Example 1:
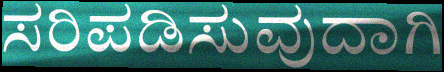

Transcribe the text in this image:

ಸರಿಪಡಿಸುವುದಾಗಿ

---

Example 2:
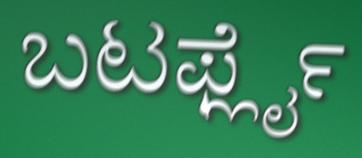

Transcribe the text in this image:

ಬಟರ್ಫ್ಲೈ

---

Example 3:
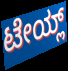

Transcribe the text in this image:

ಟೇಯ್ಲ್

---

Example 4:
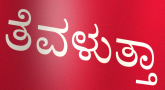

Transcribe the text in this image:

ತೆವಳುತ್ತಾ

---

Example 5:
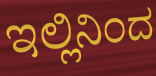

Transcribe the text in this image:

ಇಲ್ಲಿನಿಂದ